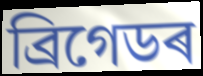
ব্ৰিগেডৰ